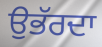
ਉਭੱਰਦਾ